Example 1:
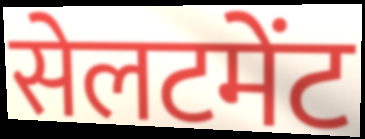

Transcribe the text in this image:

सेलटमेंट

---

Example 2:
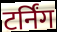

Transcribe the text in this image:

टर्निंग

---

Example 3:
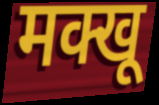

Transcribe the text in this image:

मक्खू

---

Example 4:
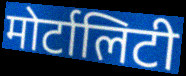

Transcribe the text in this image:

मोर्टालिटी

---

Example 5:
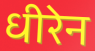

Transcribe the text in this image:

धीरेन